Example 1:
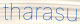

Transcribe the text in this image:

tharasu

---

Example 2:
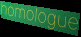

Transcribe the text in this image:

homologue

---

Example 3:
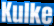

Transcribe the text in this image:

Kulke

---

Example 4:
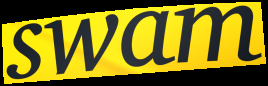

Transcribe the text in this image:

swam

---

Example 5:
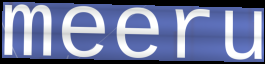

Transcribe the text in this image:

meeru